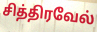
சித்திரவேல்